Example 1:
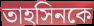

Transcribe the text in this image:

তাহসিনকে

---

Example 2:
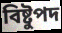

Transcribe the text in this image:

বিষ্টুপদ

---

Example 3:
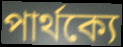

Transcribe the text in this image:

পার্থক্যে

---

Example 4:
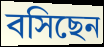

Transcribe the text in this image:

বসিছেন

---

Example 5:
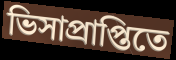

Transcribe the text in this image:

ভিসাপ্রাপ্তিতে